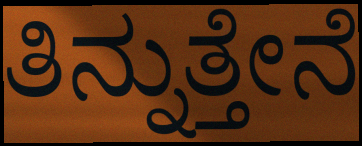
ತಿನ್ನುತ್ತೇನೆ